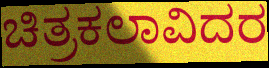
ಚಿತ್ರಕಲಾವಿದರ